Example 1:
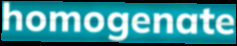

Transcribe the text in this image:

homogenate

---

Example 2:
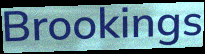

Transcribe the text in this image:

Brookings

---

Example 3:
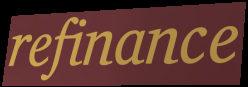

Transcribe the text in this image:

refinance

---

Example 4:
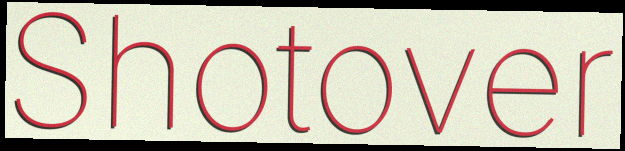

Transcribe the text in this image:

Shotover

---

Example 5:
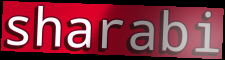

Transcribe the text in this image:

sharabi